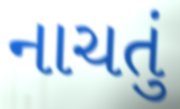
નાચતું